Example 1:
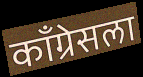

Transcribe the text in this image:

काँग्रेसला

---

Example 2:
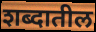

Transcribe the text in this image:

शब्दातील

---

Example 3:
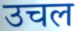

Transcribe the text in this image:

उचल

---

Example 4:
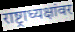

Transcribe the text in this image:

राष्ट्राध्यक्षांवर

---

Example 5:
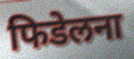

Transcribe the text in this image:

फिडेलना